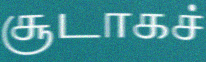
சூடாகச்